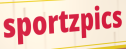
sportzpics